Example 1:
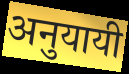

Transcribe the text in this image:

अनुयायी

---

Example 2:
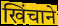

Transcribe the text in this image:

खिंचाने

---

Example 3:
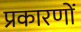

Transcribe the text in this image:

प्रकारणों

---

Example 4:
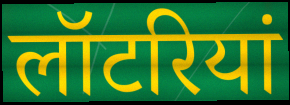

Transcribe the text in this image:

लॉटरियां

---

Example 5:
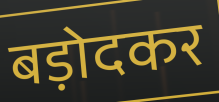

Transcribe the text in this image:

बड़ोदकर